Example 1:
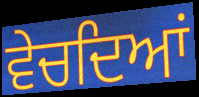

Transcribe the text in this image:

ਵੇਚਦਿਆਂ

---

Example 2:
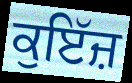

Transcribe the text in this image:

ਕੁਇੱਜ਼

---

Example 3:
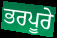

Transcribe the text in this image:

ਭਰਪੂਰੇ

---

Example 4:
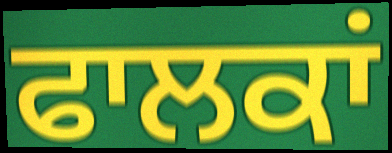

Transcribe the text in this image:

ਫਾਲਕਾਂ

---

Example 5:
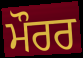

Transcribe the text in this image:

ਮੌਰਰ